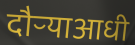
दौऱ्याआधी